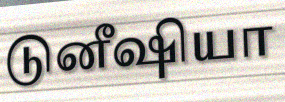
டுனீஷியா